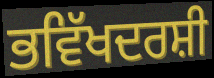
ਭਵਿੱਖਦਰਸ਼ੀ